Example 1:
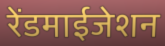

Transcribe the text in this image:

रेंडमाईजेशन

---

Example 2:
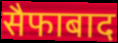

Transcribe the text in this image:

सैफाबाद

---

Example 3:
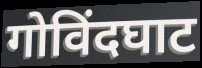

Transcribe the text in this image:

गोविंदघाट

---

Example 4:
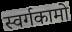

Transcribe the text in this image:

स्वर्गकामो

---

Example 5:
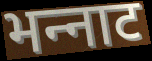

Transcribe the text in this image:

भन्नाट